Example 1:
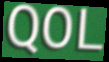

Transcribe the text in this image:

QOL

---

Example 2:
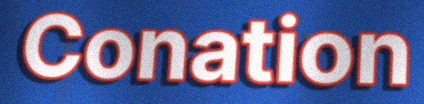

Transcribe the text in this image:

Conation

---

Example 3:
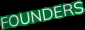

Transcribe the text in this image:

FOUNDERS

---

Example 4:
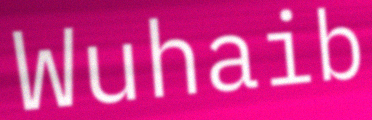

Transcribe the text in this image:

Wuhaib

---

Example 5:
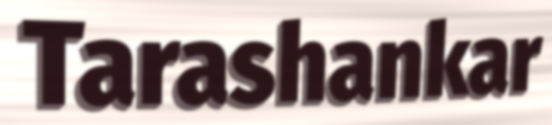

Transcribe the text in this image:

Tarashankar